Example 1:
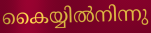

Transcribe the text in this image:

കൈയ്യിൽനിന്നു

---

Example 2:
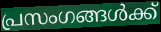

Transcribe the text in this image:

പ്രസംഗങ്ങൾക്ക്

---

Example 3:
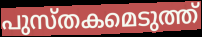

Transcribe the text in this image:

പുസ്തകമെടുത്ത്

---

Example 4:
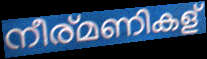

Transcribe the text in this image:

നീര്മണികള്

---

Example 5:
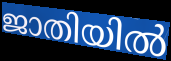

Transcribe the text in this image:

ജാതിയിൽ